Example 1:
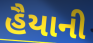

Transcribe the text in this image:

હૈયાની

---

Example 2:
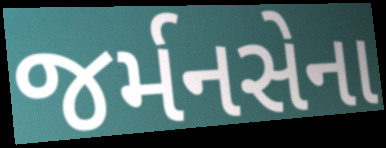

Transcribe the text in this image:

જર્મનસેના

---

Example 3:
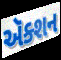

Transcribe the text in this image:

ઍક્શન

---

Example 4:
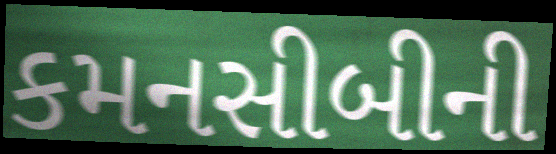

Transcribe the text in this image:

કમનસીબીની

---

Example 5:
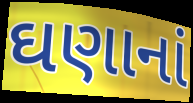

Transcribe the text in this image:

ઘણાનાં